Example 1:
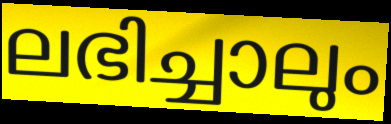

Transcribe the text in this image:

ലഭിച്ചാലും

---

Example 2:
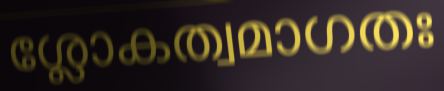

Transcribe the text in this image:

ശ്ലോകത്വമാഗതഃ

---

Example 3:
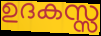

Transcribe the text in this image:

ഉദകസ്സ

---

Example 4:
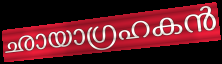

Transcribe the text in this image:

ഛായാഗ്രഹകൻ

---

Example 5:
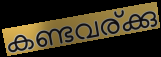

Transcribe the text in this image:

കണ്ടവര്ക്കു